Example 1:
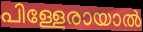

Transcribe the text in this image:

പിള്ളേരായാൽ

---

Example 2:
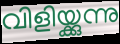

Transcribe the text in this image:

വിളിയ്ക്കുന്നു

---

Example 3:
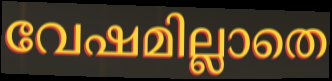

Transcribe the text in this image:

വേഷമില്ലാതെ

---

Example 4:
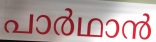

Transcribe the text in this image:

പാർഥാൻ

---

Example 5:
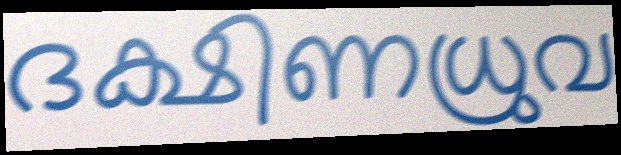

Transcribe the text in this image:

ദക്ഷിണധ്രുവ